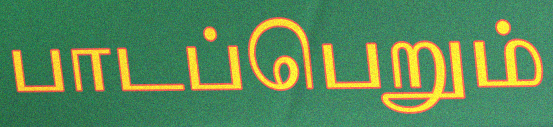
பாடப்பெறும்